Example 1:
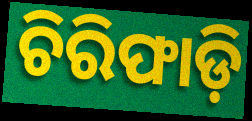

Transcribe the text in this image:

ଚିରିଫାଡ଼ି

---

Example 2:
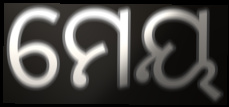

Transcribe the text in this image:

ମେୟ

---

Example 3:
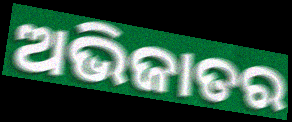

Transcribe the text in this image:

ଅଭିଜାତର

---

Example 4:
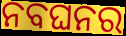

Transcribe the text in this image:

ନବଘନର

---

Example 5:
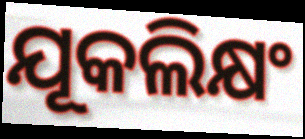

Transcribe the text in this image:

ଯୂକଲିକ୍ଷଂ